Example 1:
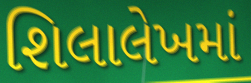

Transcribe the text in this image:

શિલાલેખમાં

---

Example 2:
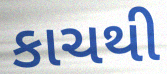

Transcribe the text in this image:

કાચથી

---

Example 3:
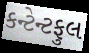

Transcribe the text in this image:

કન્ટેન્ટફુલ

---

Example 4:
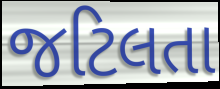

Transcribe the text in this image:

જટિલતા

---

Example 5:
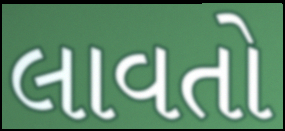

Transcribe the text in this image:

લાવતો